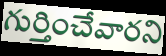
గుర్తించేవారని